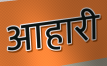
आहारी